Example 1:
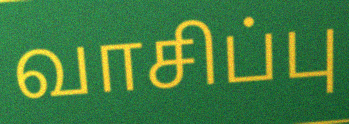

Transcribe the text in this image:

வாசிப்பு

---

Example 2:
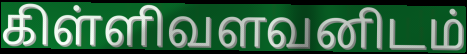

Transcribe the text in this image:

கிள்ளிவளவனிடம்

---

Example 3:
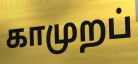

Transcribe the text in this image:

காமுறப்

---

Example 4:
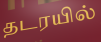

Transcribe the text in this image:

தடரயில்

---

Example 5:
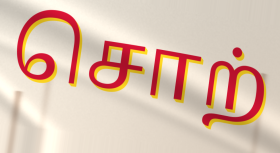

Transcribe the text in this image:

சொற்